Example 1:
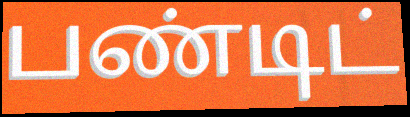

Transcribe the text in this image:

பண்டிட்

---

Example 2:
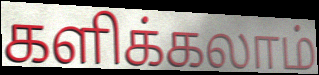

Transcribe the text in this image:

களிக்கலாம்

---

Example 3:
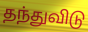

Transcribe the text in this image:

தந்துவிடு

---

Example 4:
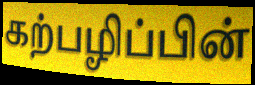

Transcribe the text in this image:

கற்பழிப்பின்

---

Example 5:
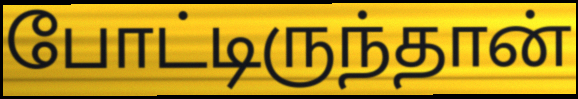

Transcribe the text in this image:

போட்டிருந்தான்